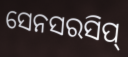
ସେନସରସିପ୍